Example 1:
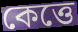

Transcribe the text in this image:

কেত্তে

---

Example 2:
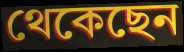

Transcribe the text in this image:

থেকেছেন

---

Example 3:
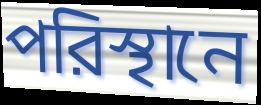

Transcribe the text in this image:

পরিস্থানে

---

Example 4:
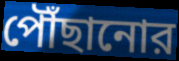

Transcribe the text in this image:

পৌঁছানোর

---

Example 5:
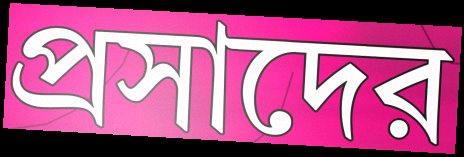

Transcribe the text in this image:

প্রসাদের